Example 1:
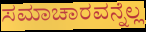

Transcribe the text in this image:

ಸಮಾಚಾರವನ್ನೆಲ್ಲ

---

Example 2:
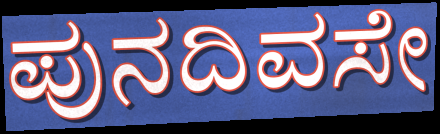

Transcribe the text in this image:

ಪುನದಿವಸೇ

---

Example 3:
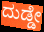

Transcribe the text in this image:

ದುಡ್ಡೇ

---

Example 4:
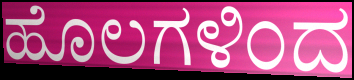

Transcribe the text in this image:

ಹೊಲಗಳಿಂದ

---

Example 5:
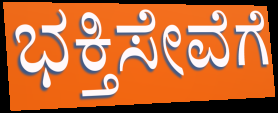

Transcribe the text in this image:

ಭಕ್ತಿಸೇವೆಗೆ